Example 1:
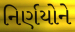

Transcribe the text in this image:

નિર્ણયોને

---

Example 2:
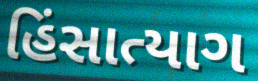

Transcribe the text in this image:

હિંસાત્યાગ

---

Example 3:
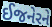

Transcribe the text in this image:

ઈજનેરને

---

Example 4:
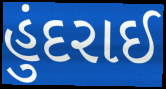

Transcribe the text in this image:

હુંદરાઈ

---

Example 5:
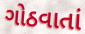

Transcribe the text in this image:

ગોઠવાતાં